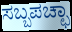
ಸಬ್ಬಪಚ್ಛಾ